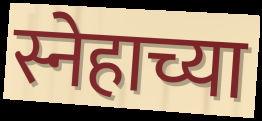
स्नेहाच्या